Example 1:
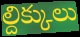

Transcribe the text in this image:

ల్దిక్కులు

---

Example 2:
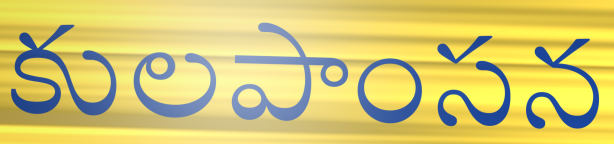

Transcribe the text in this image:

కులపాంసన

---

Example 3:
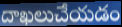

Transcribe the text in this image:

దాఖలుచేయడం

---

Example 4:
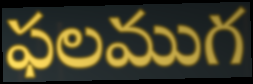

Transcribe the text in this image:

ఫలముగ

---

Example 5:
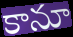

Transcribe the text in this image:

కానూ